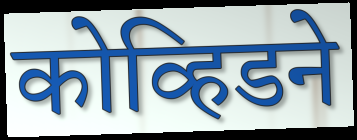
कोव्हिडने